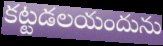
కట్టడలయందును